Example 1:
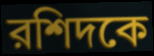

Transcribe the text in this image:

রশিদকে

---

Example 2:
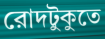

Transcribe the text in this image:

রোদটুকুতে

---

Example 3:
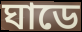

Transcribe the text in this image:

ঘাডে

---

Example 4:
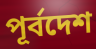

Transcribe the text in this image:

পূর্বদেশ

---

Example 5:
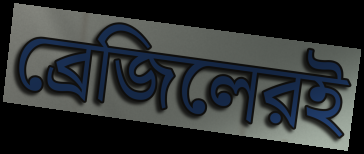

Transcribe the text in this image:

ব্রেজিলেরই